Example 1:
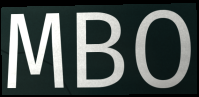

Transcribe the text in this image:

MBO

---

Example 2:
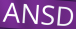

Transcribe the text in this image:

ANSD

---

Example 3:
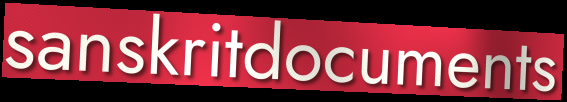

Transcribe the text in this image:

sanskritdocuments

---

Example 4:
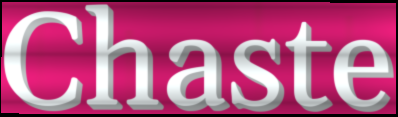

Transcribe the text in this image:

Chaste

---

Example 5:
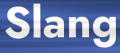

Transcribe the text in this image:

Slang